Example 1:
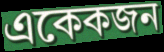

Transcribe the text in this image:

একেকজন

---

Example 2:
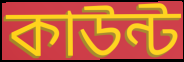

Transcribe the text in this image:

কাউন্ট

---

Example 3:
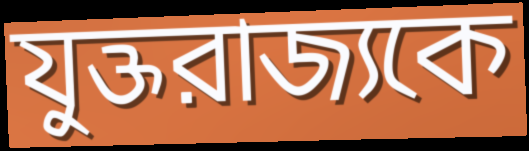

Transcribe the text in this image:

যুক্তরাজ্যকে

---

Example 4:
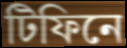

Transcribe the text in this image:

টিফিনে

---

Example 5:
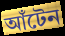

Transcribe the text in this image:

আঁটেন